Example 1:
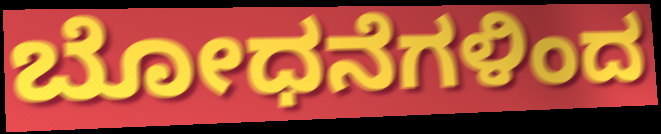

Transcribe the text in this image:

ಬೋಧನೆಗಳಿಂದ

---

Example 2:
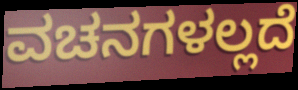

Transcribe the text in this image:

ವಚನಗಳಲ್ಲದೆ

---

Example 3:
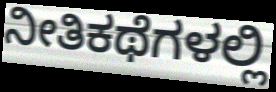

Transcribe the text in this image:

ನೀತಿಕಥೆಗಳಲ್ಲಿ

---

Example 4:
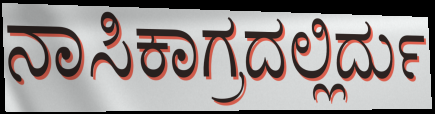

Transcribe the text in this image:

ನಾಸಿಕಾಗ್ರದಲ್ಲಿರ್ದು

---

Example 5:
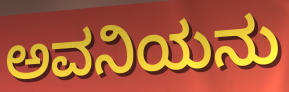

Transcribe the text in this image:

ಅವನಿಯನು